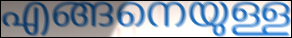
എങ്ങനെയുള്ള